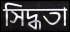
সিদ্ধতা